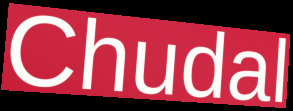
Chudal